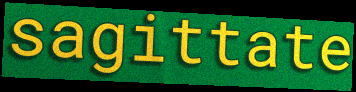
sagittate